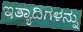
ಇತ್ಯಾದಿಗಳನ್ನು